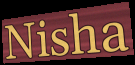
Nisha